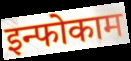
इन्फोकाम